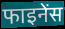
फाइनेंस